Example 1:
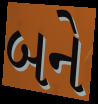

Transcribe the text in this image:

બને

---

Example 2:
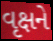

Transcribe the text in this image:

વૃક્ષને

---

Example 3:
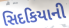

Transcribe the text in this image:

સિદકિયાની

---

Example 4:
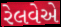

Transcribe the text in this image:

રેલવેએ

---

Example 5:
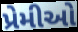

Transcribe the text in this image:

પ્રેમીઓ